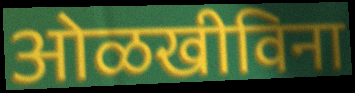
ओळखीविना